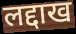
लद्दाख